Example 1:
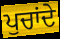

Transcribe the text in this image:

ਪੁਚਾਂਦੇ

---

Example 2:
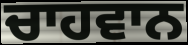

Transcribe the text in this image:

ਚਾਹਵਾਨ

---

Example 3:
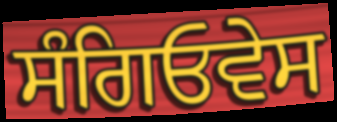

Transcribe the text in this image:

ਸੰਗਿਓਵੇਸ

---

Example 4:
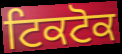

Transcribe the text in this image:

ਟਿਕਟੋਕ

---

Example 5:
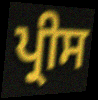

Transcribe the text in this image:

ਪ੍ਰੀਸ